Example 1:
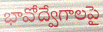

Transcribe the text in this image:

భావోద్వేగాలపై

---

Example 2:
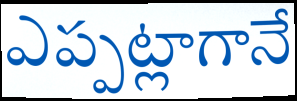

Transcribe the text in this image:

ఎప్పట్లాగానే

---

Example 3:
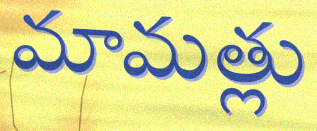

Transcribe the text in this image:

మామత్లు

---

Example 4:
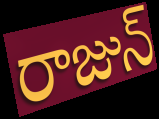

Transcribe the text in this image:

రాజున్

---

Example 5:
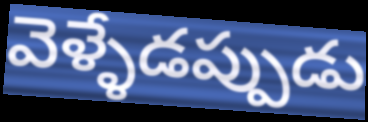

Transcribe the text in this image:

వెళ్ళేడప్పుడు